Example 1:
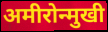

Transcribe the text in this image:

अमीरोन्मुखी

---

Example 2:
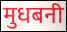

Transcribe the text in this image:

मुधबनी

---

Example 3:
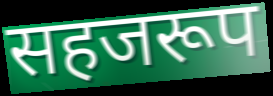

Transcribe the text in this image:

सहजरूप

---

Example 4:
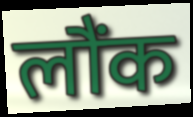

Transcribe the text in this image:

लौंक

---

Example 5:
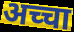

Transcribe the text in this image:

अच्चा